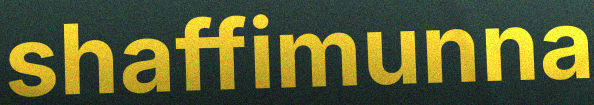
shaffimunna